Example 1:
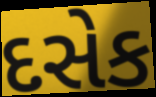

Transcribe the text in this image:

દસેક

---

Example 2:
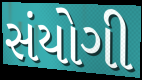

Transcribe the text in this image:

સંયોગી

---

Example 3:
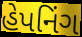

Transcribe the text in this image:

હેપનિંગ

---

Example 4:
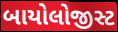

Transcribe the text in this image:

બાયોલોજીસ્ટ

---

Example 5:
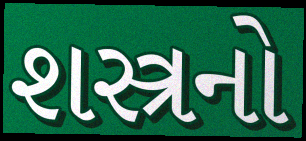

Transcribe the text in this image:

શસ્ત્રનો